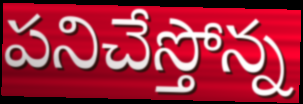
పనిచేస్తోన్న